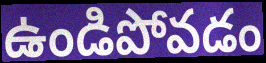
ఉండిపోవడం